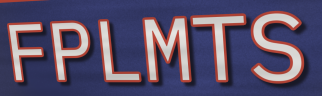
FPLMTS